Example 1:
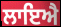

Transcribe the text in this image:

ਲਾਇਐ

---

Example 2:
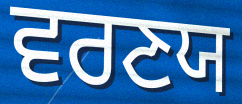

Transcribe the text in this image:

ਵਰਣਯ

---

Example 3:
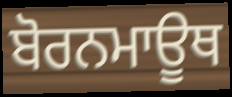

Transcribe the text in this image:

ਬੋਰਨਮਾਊਥ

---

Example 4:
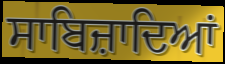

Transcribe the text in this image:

ਸਾਬਿਜ਼ਾਦਿਆਂ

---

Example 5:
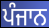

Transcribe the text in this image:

ਪੰਜਾਨ